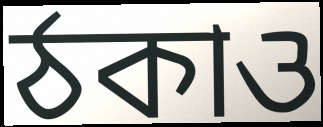
ঠকাও